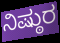
ನಿಷ್ಠುರ